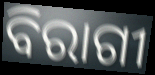
ବିରାଗୀ